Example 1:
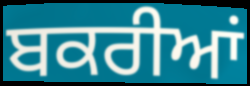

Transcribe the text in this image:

ਬਕਰੀਆਂ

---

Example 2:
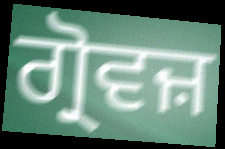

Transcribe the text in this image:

ਗ੍ਰੋਵਜ਼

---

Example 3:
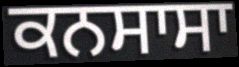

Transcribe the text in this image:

ਕਨਸਾਸਾ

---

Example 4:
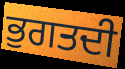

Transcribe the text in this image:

ਭੁਗਤਦੀ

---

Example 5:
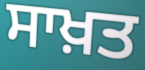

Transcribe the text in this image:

ਸਾਖ਼ਤ